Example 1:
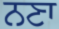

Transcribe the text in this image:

ਨਣਾ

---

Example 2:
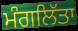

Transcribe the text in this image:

ਮੰਗਲਿੱਤਾ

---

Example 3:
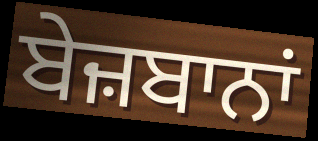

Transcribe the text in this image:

ਬੇਜ਼ਬਾਨਾਂ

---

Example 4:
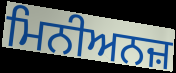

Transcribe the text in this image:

ਮਿਨੀਅਨਜ਼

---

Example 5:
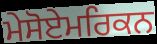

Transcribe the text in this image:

ਮੇਸੋਏਮਰਿਕਨ